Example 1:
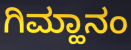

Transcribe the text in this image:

ಗಿಮ್ಹಾನಂ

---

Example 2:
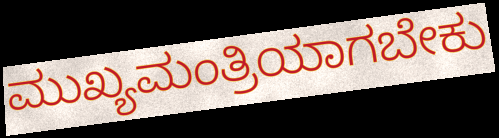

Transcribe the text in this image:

ಮುಖ್ಯಮಂತ್ರಿಯಾಗಬೇಕು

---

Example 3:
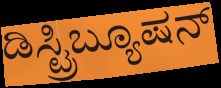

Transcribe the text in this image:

ಡಿಸ್ಟ್ರಿಬ್ಯೂಷನ್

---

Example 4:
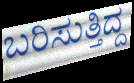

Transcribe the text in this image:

ಬರಿಸುತ್ತಿದ್ದ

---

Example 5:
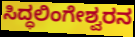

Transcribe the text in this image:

ಸಿದ್ಧಲಿಂಗೇಶ್ವರನ